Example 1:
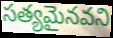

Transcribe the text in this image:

సత్యమైనవని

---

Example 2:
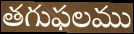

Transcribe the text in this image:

తగుఫలము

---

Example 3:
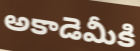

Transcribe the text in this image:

అకాడెమీకి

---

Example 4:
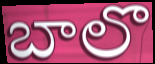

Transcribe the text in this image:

బాలొ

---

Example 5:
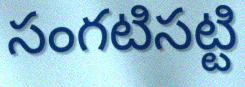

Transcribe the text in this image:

సంగటిసట్టి